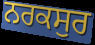
ਨਰਕਸੁਰ